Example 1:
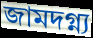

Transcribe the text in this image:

জামদগ্ন্য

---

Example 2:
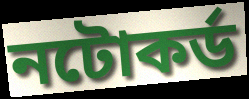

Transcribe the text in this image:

নটোকর্ড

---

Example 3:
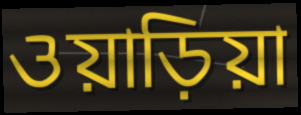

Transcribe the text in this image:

ওয়াড়িয়া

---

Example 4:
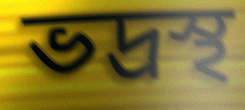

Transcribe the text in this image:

ভদ্রস্থ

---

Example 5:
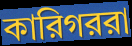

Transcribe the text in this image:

কারিগররা